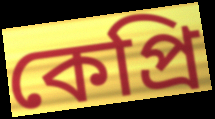
কেপ্রি